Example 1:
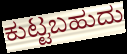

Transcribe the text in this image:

ಕುಟ್ಟಬಹುದು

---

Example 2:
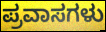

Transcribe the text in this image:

ಪ್ರವಾಸಗಳು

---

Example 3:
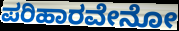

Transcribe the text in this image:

ಪರಿಹಾರವೇನೋ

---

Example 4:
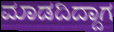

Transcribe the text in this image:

ಮಾಡದಿದ್ದಾಗ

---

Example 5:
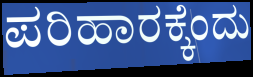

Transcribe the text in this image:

ಪರಿಹಾರಕ್ಕೆಂದು